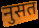
नुसत